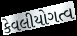
કેવલીયોગત્વ